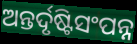
ଅନ୍ତର୍ଦୃଷ୍ଟିସଂପନ୍ନ